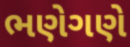
ભણેગણે